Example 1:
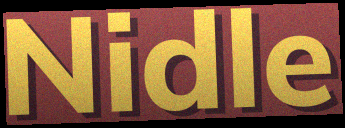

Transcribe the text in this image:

Nidle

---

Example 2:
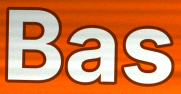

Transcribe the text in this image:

Bas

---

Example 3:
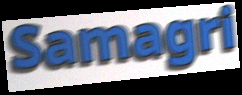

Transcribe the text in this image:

Samagri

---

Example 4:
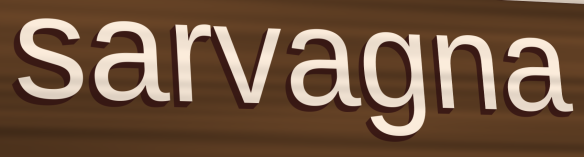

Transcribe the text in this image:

sarvagna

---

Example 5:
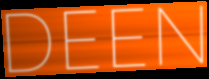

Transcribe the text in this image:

DEEN